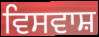
ਵਿਸਵਾਸ਼